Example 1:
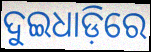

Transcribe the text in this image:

ଦୁଇଧାଡ଼ିରେ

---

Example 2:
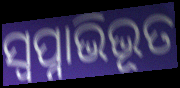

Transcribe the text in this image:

ସ୍ଵପ୍ନାଭିଭୂତ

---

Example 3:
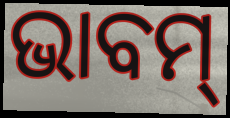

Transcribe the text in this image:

ଭାବମ୍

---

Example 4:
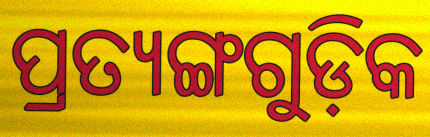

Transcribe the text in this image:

ପ୍ରତ୍ୟଙ୍ଗଗୁଡ଼ିକ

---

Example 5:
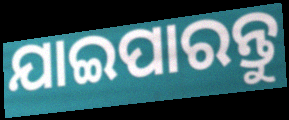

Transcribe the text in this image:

ଯାଇପାରନ୍ତୁ